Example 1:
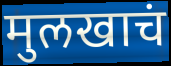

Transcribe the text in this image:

मुलखाचं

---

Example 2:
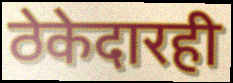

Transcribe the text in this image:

ठेकेदारही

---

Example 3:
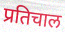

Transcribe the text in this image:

प्रतिचाल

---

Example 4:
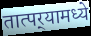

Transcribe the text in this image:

तात्पर्यामध्ये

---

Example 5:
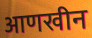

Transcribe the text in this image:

आणखीन